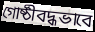
গোষ্ঠীবদ্ধভাবে